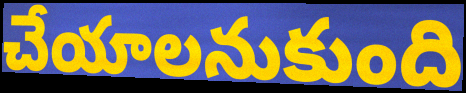
చేయాలనుకుంది